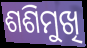
ଶଶିମୁଖି